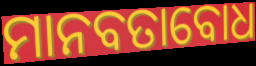
ମାନବତାବୋଧ